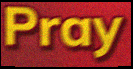
Pray